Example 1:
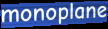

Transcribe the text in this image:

monoplane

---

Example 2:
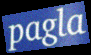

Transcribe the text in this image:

pagla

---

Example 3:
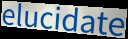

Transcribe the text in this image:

elucidate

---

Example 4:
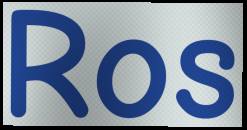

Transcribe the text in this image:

Ros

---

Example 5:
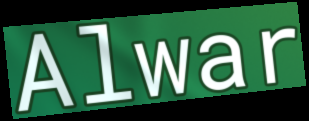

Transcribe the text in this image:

Alwar